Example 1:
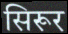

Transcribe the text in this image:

सिरूर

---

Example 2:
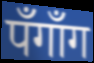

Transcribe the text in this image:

पँगाँग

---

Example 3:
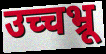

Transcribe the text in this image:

उच्चभ्रू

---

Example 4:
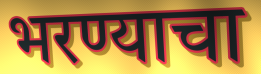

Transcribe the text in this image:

भरण्याचा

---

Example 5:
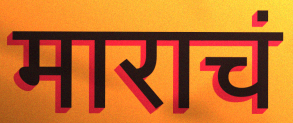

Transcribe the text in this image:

माराचं